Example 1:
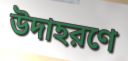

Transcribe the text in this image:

উদাহরণে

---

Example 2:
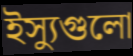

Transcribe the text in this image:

ইস্যুগুলো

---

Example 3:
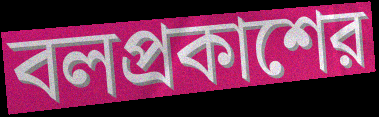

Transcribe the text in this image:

বলপ্রকাশের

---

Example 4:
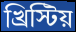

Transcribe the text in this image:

খ্রিস্টিয়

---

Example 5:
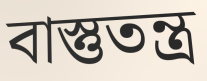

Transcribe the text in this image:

বাস্তুতন্ত্র